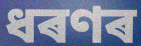
ধৰণৰ